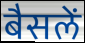
बैसलें